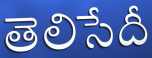
తెలిసేదీ